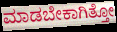
ಮಾಡಬೇಕಾಗಿತ್ತೋ